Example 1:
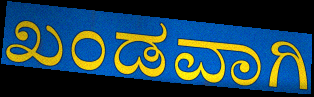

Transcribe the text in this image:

ಖಂಡವಾಗಿ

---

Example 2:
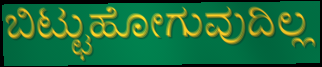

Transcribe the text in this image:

ಬಿಟ್ಟುಹೋಗುವುದಿಲ್ಲ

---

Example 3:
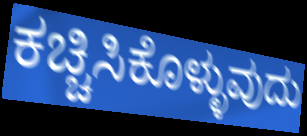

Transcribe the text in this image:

ಕಚ್ಚಿಸಿಕೊಳ್ಳುವುದು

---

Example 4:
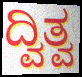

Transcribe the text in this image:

ದ್ವಿತ್ವ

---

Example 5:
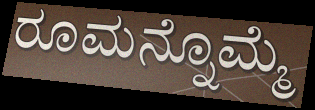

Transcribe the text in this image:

ರೂಮನ್ನೊಮ್ಮೆ